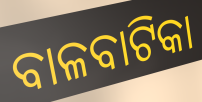
ବାଳବାଟିକା